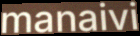
manaivi